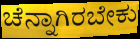
ಚೆನ್ನಾಗಿರಬೇಕು